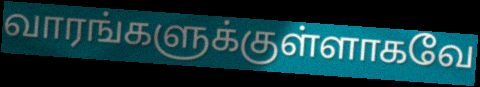
வாரங்களுக்குள்ளாகவே